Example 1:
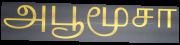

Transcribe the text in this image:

அபூமூசா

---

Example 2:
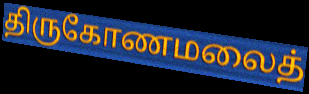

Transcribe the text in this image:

திருகோணமலைத்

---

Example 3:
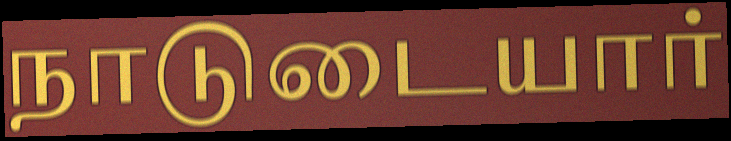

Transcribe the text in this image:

நாடுடையார்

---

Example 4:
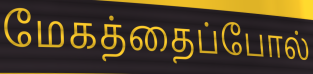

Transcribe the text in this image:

மேகத்தைப்போல்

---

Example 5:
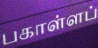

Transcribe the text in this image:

பகாள்ளப்